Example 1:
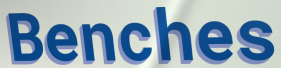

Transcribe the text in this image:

Benches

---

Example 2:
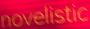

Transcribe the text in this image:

novelistic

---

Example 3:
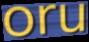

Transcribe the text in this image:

oru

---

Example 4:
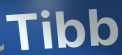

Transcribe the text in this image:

Tibb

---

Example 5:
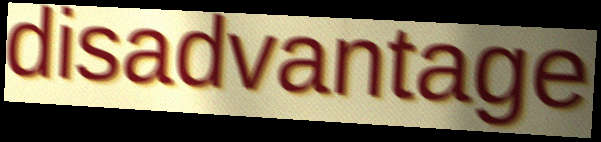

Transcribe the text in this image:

disadvantage